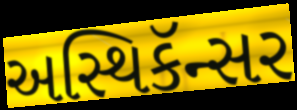
અસ્થિકૅન્સર